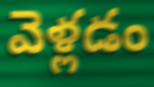
వెళ్లడం